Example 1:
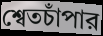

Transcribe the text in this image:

শ্বেতচাঁপার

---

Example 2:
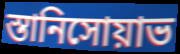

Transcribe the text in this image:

স্তানিসোয়াভ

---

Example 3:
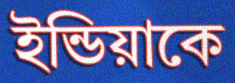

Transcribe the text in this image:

ইন্ডিয়াকে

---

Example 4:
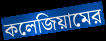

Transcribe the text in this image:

কলেজিয়ামের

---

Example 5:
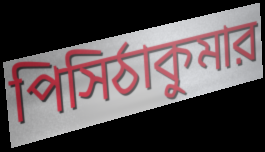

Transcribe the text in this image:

পিসিঠাকুমার